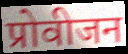
प्रोवीजन